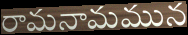
రామనామమున